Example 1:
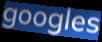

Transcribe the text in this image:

googles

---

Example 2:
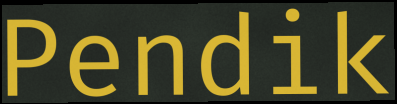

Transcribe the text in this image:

Pendik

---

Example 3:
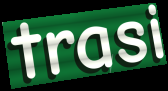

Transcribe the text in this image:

trasi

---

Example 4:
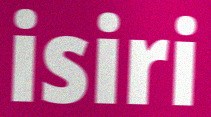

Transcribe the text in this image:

isiri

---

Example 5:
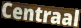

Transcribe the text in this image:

Centraal